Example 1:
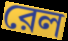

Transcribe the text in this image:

রেল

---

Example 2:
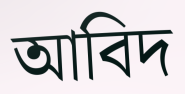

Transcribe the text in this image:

আবিদ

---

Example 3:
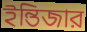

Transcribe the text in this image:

ইন্তিজার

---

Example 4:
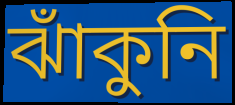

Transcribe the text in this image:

ঝাঁকুনি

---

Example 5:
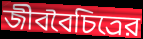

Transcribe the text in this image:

জীববৈচিত্রের